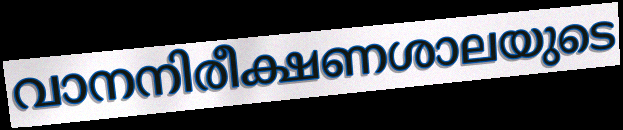
വാനനിരീക്ഷണശാലയുടെ